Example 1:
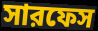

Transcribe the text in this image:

সারফেস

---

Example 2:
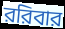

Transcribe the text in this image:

ররিবার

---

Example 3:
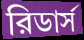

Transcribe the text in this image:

রিডার্স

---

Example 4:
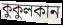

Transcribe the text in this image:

কুকুলকান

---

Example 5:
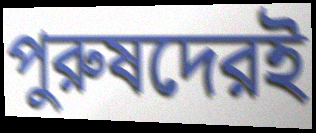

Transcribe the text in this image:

পুরুষদেরই